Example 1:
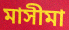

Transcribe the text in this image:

মাসীমা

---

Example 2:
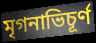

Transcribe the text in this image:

মৃগনাভিচূর্ণ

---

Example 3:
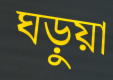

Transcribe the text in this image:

ঘড়ুয়া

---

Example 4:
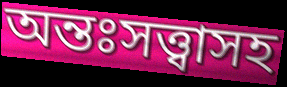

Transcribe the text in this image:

অন্তঃসত্ত্বাসহ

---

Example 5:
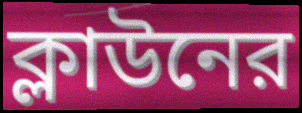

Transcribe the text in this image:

ক্লাউনের